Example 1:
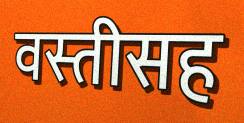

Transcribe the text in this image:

वस्तीसह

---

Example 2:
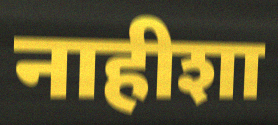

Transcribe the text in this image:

नाहीशा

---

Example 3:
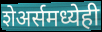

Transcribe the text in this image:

शेअर्समध्येही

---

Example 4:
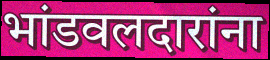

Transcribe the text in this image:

भांडवलदारांना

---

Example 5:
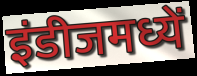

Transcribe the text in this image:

इंडीजमध्यें